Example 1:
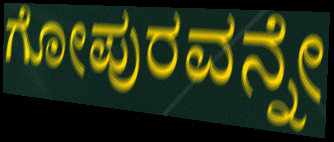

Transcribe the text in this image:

ಗೋಪುರವನ್ನೇ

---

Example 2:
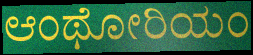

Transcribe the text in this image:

ಆಂಥೋರಿಯಂ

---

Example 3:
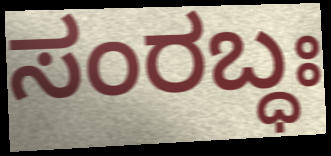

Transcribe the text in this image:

ಸಂರಬ್ಧಃ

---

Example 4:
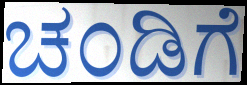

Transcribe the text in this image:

ಚಂಡಿಗೆ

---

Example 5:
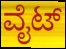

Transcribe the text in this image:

ವೈಟ್